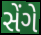
સેંગે